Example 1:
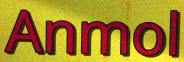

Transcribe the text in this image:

Anmol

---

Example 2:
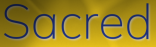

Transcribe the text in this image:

Sacred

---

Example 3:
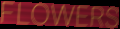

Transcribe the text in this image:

FLOWERS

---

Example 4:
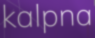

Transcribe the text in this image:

kalpna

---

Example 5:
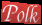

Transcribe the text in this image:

Polk